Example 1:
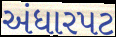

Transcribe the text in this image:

અંધારપટ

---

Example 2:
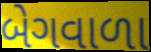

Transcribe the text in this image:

બેગવાળા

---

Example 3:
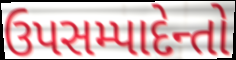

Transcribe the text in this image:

ઉપસમ્પાદેન્તો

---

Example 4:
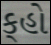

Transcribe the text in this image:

ક્‌હો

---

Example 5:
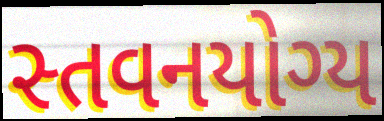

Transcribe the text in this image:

સ્તવનયોગ્ય